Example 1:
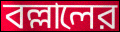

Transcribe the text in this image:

বল্লালের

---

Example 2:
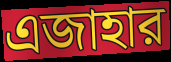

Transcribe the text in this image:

এজাহার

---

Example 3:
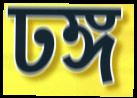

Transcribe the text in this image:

ঢঙ্গ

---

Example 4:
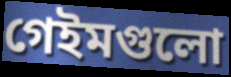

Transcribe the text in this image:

গেইমগুলো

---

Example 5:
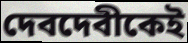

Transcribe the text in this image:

দেবদেবীকেই